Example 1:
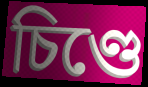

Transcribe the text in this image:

চিণ্ডে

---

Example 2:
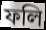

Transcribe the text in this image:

ফলি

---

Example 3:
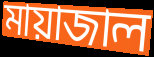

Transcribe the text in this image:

মায়াজাল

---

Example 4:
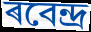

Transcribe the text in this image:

ৰবেন্দ্ৰ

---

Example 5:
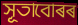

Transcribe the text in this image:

সূতাবোৰৰ